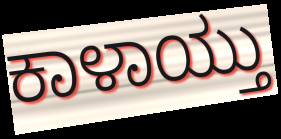
ಕಾಳಾಯ್ತು